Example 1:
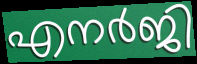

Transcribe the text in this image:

എനർജി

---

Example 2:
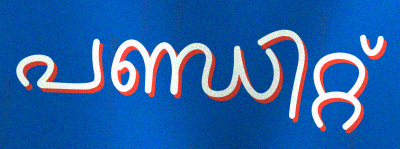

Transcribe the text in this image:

പണ്ഡിറ്റ്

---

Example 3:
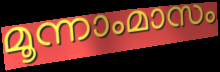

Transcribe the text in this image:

മൂന്നാംമാസം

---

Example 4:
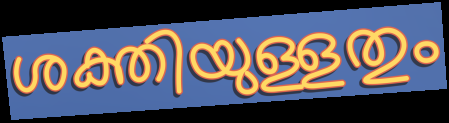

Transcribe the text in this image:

ശക്തിയുള്ളതും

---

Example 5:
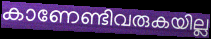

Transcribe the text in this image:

കാണേണ്ടിവരുകയില്ല